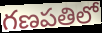
గణపతిలో